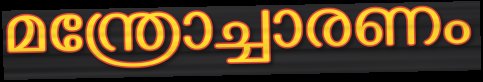
മന്ത്രോച്ചാരണം